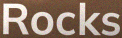
Rocks